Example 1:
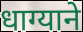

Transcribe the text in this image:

धाग्याने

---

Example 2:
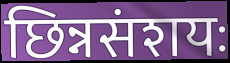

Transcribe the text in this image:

छिन्नसंशयः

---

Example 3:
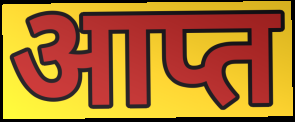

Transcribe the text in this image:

आप्त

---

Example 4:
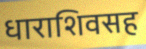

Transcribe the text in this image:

धाराशिवसह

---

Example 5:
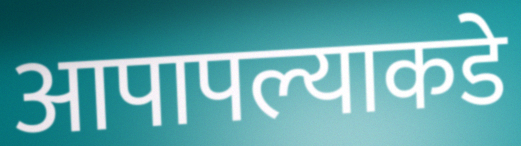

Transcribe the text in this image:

आपापल्याकडे